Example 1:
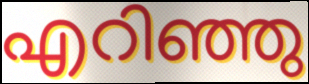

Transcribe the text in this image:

എറിഞ്ഞു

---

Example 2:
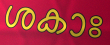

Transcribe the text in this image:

ശകാഃ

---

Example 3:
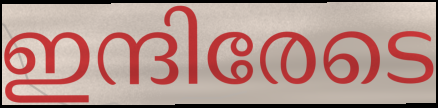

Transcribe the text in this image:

ഇന്ദിരേടെ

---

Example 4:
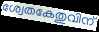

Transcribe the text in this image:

ശ്വേതകേതുവിന്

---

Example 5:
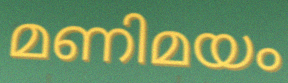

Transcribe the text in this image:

മണിമയം